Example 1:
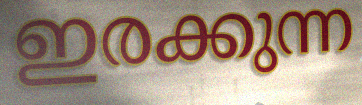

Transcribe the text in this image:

ഇരക്കുന്ന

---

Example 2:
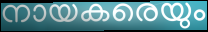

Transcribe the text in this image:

നായകരെയും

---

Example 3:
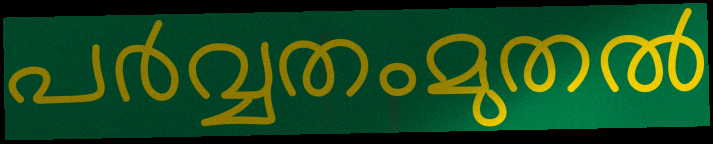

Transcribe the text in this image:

പർവ്വതംമുതൽ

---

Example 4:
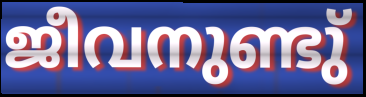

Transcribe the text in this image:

ജീവനുണ്ടു്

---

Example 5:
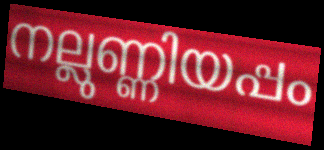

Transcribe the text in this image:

നല്ലുണ്ണിയപ്പം